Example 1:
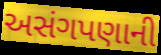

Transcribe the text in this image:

અસંગપણાની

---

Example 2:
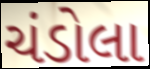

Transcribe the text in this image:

ચંડોલા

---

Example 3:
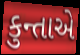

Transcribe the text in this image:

કુન્તાએ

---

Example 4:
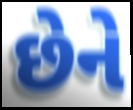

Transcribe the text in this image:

છેને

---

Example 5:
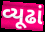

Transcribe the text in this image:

વ્યૂઢાં